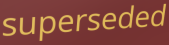
superseded